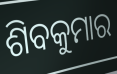
ଶିବକୁମାର